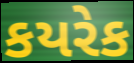
કયરેક